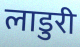
लाडुरी